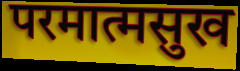
परमात्मसुख